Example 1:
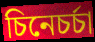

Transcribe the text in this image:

চিনেচৰ্চা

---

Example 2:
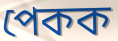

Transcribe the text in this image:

পেকক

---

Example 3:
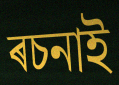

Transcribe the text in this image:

ৰচনাই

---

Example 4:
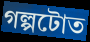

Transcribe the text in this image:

গল্পটোত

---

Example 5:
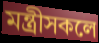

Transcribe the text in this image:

মন্ত্ৰীসকলে